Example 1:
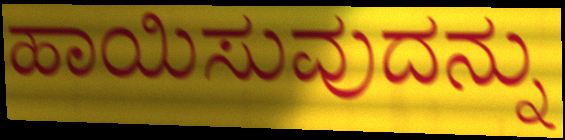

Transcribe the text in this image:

ಹಾಯಿಸುವುದನ್ನು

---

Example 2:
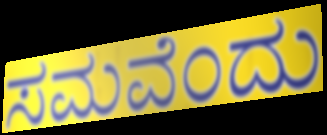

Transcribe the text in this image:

ಸಮವೆಂದು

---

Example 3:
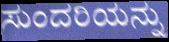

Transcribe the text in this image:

ಸುಂದರಿಯನ್ನು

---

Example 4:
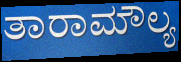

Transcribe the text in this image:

ತಾರಾಮೌಲ್ಯ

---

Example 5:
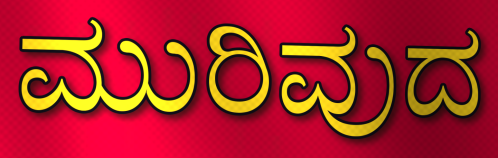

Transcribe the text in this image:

ಮುರಿವುದ